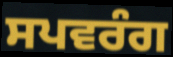
ਸਪਵਰੰਗ